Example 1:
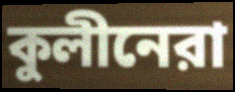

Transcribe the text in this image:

কুলীনেরা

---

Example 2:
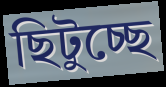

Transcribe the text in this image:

ছিটুচ্ছে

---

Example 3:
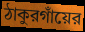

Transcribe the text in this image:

ঠাকুরগাঁয়ের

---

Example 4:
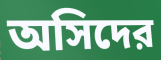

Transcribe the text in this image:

অসিদের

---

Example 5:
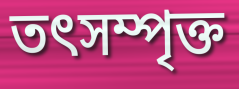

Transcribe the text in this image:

তৎসম্পৃক্ত